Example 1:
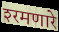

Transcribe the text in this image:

श्रमणारे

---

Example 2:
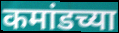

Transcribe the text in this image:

कमांडच्या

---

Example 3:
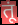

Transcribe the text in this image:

तूं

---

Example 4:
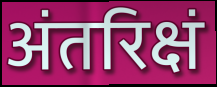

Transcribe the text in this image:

अंतरिक्षं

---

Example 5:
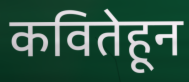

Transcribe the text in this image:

कवितेहून